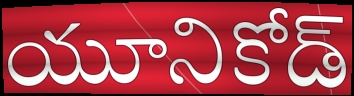
యూనికోడ్